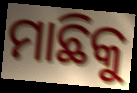
ମାଛିକୁ